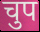
चुप